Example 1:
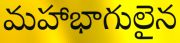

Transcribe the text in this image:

మహాభాగులైన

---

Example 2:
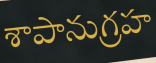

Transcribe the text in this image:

శాపానుగ్రహ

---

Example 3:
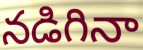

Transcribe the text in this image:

నడిగినా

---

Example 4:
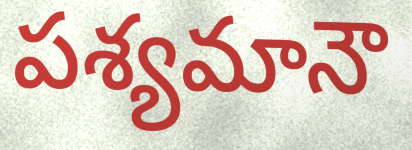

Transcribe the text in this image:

పశ్యమానౌ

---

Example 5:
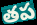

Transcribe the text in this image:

తప